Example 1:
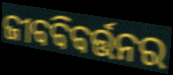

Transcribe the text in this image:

ଜୀବବିବର୍ତ୍ତନର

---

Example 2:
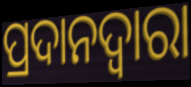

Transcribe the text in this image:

ପ୍ରଦାନଦ୍ୱାରା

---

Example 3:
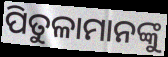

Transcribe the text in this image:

ପିତୁଳାମାନଙ୍କୁ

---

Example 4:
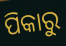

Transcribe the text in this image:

ପିକାରୁ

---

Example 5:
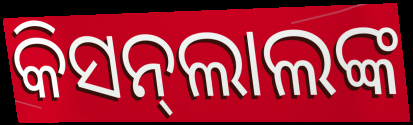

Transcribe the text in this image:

କିସନ୍‌ଲାଲଙ୍କ